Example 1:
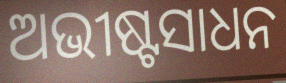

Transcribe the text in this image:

ଅଭୀଷ୍ଟସାଧନ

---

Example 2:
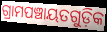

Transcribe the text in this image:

ଗ୍ରାମପଞ୍ଚାୟତଗୁଡ଼ିକ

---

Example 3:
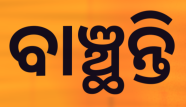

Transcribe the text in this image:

ବାଞ୍ଛନ୍ତି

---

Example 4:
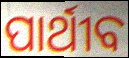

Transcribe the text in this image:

ପାର୍ଥୀବ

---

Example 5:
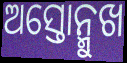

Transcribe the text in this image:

ଅସ୍ତୋନ୍ମୁଖ